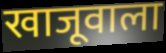
खाजूवाला